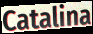
Catalina